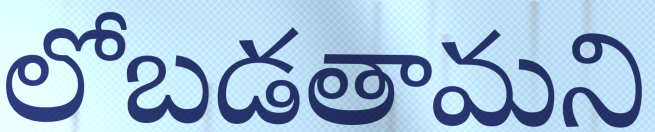
లోబడతామని